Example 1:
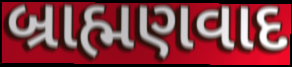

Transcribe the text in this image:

બ્રાહ્મણવાદ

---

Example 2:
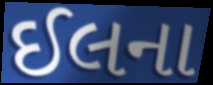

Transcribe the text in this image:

ઈલના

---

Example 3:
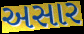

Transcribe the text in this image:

અસાર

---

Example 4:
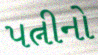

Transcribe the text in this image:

પત્નીનો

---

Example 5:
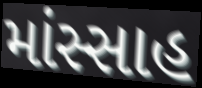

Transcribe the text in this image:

માંસ્સાહ